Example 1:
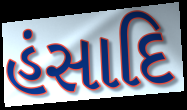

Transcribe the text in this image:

હંસાદિ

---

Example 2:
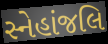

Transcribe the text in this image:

સ્નેહાંજલિ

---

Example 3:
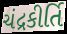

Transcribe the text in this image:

ચંદ્રકીર્તિ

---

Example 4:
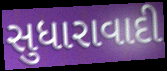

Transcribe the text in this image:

સુધારાવાદી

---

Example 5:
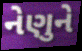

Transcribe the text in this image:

નેણુને